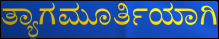
ತ್ಯಾಗಮೂರ್ತಿಯಾಗಿ